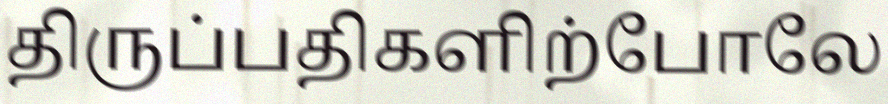
திருப்பதிகளிற்போலே